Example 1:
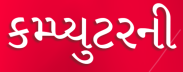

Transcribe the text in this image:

કમ્પ્યુટરની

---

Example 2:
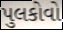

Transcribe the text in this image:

પુલકોવો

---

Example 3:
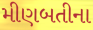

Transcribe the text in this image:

મીણબતીના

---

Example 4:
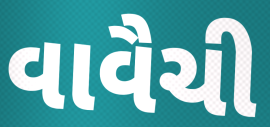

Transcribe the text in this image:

વાવૈચી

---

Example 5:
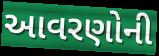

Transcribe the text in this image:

આવરણોની